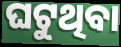
ଘଟୁଥିବା